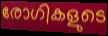
രോഗികളുടെ